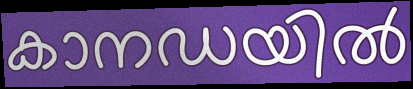
കാനഡയിൽ